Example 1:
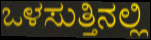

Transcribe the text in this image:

ಒಳಸುತ್ತಿನಲ್ಲಿ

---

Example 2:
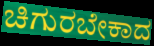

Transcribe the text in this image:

ಚಿಗುರಬೇಕಾದ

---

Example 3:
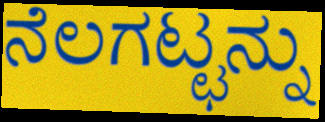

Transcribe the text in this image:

ನೆಲಗಟ್ಟನ್ನು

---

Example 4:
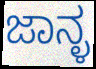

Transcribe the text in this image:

ಜಾನ್ಳ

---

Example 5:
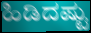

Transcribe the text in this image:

ಹಿಡಿದಷ್ಟು